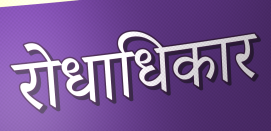
रोधाधिकार